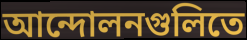
আন্দোলনগুলিতে